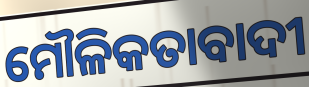
ମୌଳିକତାବାଦୀ